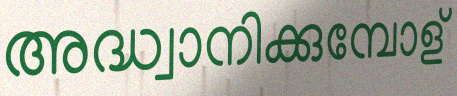
അദ്ധ്വാനിക്കുമ്പോള്